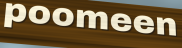
poomeen